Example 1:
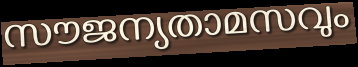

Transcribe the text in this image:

സൗജന്യതാമസവും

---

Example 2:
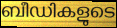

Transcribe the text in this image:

ബീഡികളുടെ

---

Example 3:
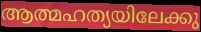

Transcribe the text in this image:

ആത്മഹത്യയിലേക്കു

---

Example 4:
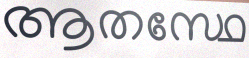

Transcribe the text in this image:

ആതസ്ഥേ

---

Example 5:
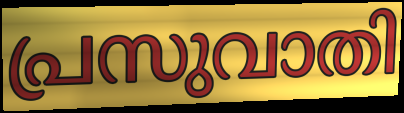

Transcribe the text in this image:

പ്രസുവാതി